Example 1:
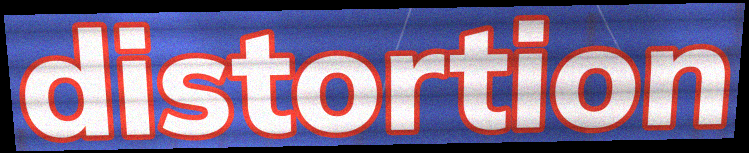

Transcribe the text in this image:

distortion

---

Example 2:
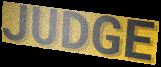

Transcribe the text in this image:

JUDGE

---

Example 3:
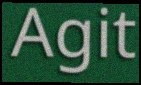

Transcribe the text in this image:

Agit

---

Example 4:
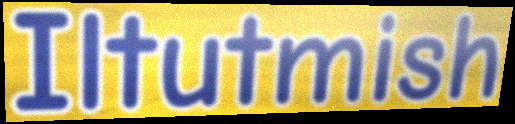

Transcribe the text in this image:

Iltutmish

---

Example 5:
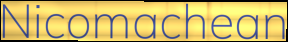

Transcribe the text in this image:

Nicomachean